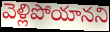
వెళ్లిపోయానని